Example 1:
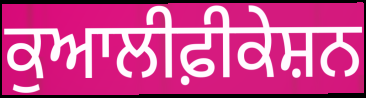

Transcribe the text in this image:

ਕੁਆਲੀਫ਼ੀਕੇਸ਼ਨ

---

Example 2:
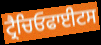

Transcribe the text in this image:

ਟ੍ਰੈਚਿਓਫਾਈਟਸ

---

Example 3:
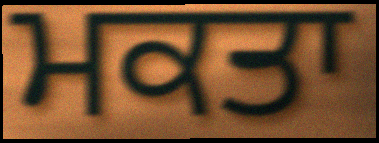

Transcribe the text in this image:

ਮਕਤਾ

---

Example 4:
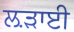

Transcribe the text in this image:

ਲ਼ੜਾਈ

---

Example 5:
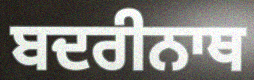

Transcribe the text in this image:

ਬਦਰੀਨਾਥ